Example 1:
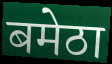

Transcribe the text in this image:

बमेठा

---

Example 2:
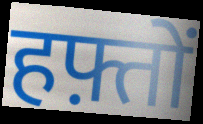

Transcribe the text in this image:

हफ़्तों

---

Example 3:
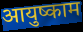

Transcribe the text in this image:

आयुष्काम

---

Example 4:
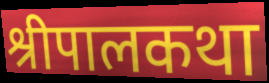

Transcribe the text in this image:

श्रीपालकथा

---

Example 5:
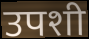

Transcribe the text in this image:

उपशी